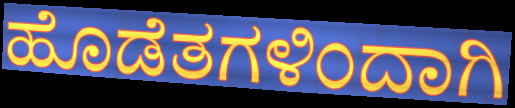
ಹೊಡೆತಗಳಿಂದಾಗಿ